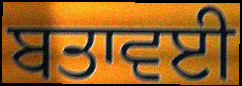
ਬਤਾਵਈ